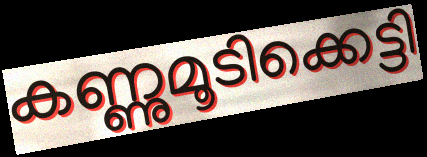
കണ്ണുമൂടിക്കെട്ടി